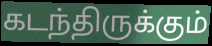
கடந்திருக்கும்